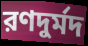
রণদুর্মদ